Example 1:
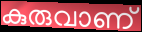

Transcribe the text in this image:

കുരുവാണ്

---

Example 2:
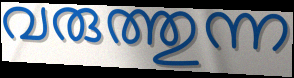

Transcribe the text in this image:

വരുത്തുന്ന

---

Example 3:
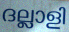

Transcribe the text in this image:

ദല്ലാളി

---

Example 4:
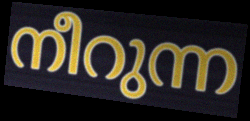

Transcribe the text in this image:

നീറുന്ന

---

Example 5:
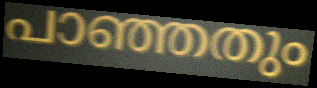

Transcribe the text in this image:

പാഞ്ഞതും